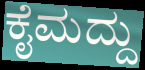
ಕೈಮದ್ದು